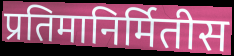
प्रतिमानिर्मितीस